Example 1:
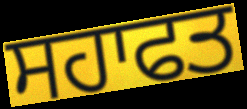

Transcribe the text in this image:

ਸਹਾਫਤ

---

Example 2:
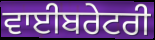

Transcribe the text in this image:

ਵਾਈਬਰੇਟਰੀ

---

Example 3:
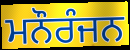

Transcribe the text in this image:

ਮਨੌਰੰਜਨ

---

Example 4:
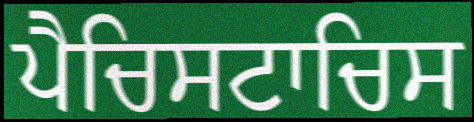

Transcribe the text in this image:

ਪੈਚਿਸਟਾਚਿਸ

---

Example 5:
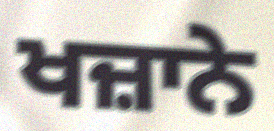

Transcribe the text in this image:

ਖਜ਼ਾਨੇ